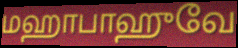
மஹாபாஹுவே